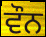
ਵੌਨ